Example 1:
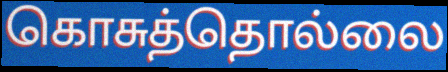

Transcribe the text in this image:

கொசுத்தொல்லை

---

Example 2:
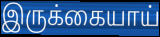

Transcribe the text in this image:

இருக்கையாய்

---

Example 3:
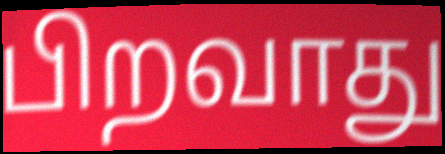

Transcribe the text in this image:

பிறவாது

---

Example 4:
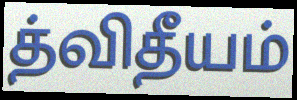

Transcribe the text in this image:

த்விதீயம்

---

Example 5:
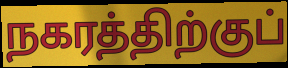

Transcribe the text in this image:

நகரத்திற்குப்